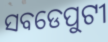
ସବଡେପୁଟୀ